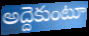
అద్దెకుంటూ